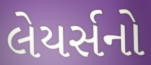
લેયર્સનો